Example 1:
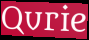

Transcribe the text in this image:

Qurie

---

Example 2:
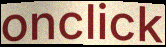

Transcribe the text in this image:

onclick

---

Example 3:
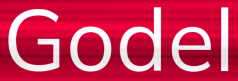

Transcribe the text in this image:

Godel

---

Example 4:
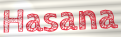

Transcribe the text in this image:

Hasana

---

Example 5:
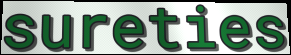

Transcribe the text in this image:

sureties